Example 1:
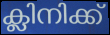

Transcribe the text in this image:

ക്ലിനിക്ക്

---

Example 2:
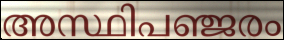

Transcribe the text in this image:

അസ്ഥിപഞ്ജരം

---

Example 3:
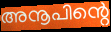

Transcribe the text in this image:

അനൂപിന്റെ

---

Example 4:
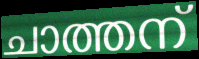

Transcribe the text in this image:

ചാത്തന്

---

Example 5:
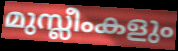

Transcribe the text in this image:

മുസ്ലീംകളും